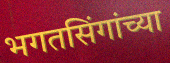
भगतसिंगांच्या